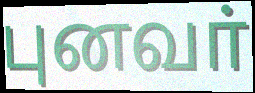
புனவர்